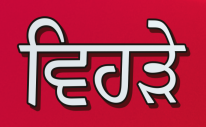
ਵਿਹੜੇ